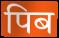
पिब